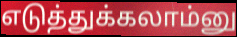
எடுத்துக்கலாம்னு